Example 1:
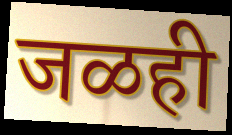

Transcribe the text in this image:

जळही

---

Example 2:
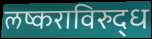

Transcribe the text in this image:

लष्कराविरुद्ध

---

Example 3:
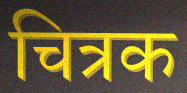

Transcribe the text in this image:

चित्रक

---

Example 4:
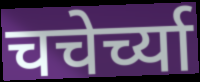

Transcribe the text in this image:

चचेर्च्या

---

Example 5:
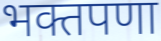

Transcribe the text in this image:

भक्तपणा